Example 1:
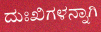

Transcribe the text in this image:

ದುಃಖಿಗಳನ್ನಾಗಿ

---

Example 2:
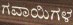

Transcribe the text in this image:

ಗವಾಯಿಗಳ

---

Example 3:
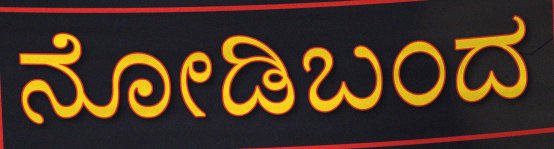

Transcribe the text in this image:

ನೋಡಿಬಂದ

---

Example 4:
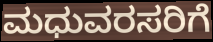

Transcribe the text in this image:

ಮಧುವರಸರಿಗೆ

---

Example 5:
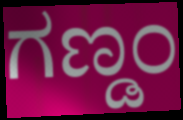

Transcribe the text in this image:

ಗಣ್ಡಂ